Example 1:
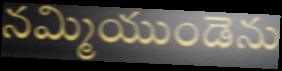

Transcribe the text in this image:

నమ్మియుండెను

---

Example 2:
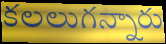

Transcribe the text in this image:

కలలుగన్నారు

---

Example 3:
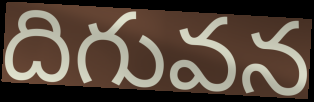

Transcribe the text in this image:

దిగువన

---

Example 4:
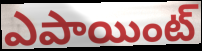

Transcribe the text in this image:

ఎపాయింట్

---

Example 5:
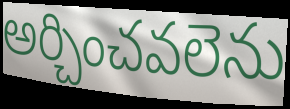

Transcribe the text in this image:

అర్చించవలెను